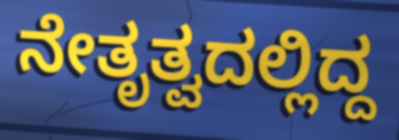
ನೇತೃತ್ವದಲ್ಲಿದ್ದ